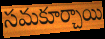
సమకూర్చాయి